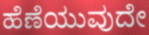
ಹೆಣೆಯುವುದೇ